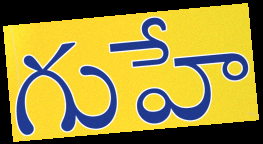
గుహే